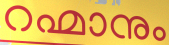
റഹ്മാനും